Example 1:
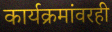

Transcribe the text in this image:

कार्यक्रमांवरही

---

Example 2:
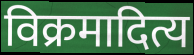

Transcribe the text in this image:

विक्रमादित्य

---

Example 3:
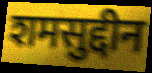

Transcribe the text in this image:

शमसुद्दीन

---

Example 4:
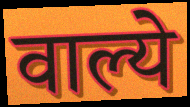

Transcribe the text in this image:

वाल्ये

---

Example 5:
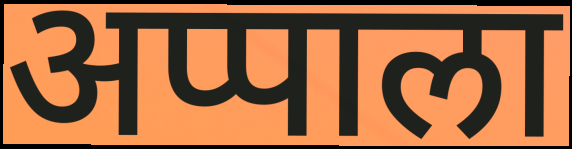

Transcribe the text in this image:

अप्पाला